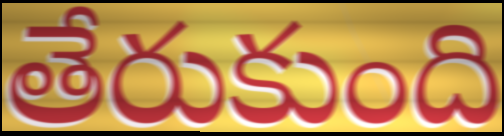
తేరుకుంది